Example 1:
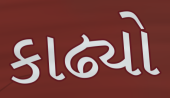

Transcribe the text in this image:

કાઢ્યો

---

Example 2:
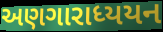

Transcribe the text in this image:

અણગારાધ્યયન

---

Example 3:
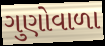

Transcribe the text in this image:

ગુણોવાળા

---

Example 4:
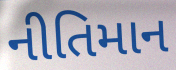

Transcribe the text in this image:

નીતિમાન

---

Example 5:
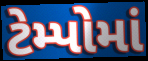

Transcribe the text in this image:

ટેમ્પોમાં